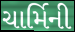
ચાર્મિની